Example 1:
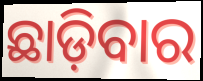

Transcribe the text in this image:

ଛାଡ଼ିବାର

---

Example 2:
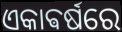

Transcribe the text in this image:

ଏକାଵର୍ଷରେ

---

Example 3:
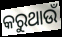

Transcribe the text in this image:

କରୁଥାଉଁ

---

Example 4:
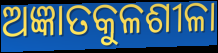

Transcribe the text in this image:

ଅଜ୍ଞାତକୁଳଶୀଳା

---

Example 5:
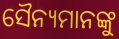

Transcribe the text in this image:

ସୈନ୍ୟମାନଙ୍କୁ